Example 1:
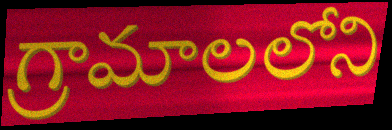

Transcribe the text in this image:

గ్రామాలలోని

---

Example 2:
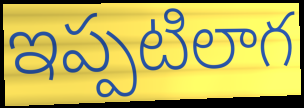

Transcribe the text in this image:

ఇప్పటిలాగ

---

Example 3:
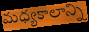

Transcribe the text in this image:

మధ్యకాలాన్ని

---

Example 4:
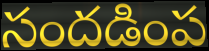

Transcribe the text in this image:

సందడింప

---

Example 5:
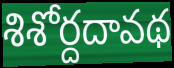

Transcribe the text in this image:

శిశోర్దదావథ